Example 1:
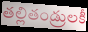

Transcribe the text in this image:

తల్లితండ్రులకీ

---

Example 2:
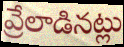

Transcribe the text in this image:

వ్రేలాడినట్లు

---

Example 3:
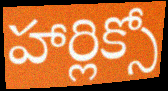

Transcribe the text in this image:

హార్లిక్సో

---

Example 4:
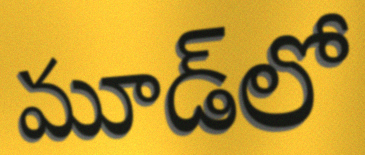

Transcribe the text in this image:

మూడ్‌లో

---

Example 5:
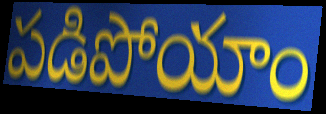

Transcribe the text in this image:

పడిపోయాం